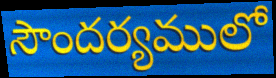
సౌందర్యములో